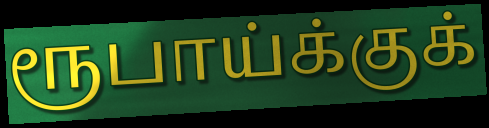
ரூபாய்க்குக்